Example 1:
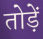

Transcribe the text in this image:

तोड़ें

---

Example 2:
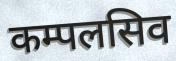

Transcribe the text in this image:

कम्पलसिव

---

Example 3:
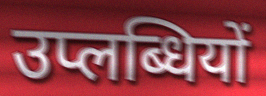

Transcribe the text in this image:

उप्लब्धियों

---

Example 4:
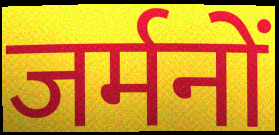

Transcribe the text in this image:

जर्मनों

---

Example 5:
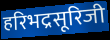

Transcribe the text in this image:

हरिभद्रसूरिजी